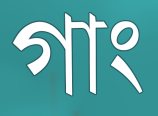
গাং